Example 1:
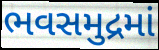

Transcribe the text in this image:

ભવસમુદ્રમાં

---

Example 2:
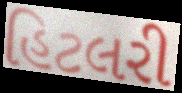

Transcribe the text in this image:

હિટલરી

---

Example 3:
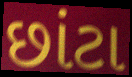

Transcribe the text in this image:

છાંટા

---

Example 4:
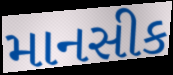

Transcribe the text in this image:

માનસીક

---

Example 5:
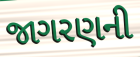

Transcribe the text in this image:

જાગરણની